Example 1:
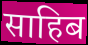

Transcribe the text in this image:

साहिब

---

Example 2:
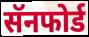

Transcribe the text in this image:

सॅनफोर्ड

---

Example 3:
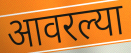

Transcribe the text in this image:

आवरल्या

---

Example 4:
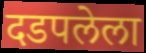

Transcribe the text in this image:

दडपलेला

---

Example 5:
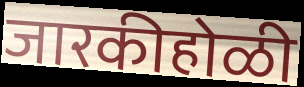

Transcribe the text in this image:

जारकीहोळी